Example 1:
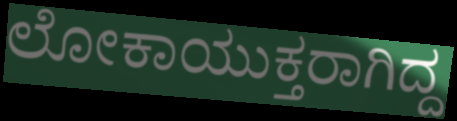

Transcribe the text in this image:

ಲೋಕಾಯುಕ್ತರಾಗಿದ್ದ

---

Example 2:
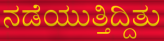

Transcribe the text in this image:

ನಡೆಯುತ್ತಿದ್ದಿತು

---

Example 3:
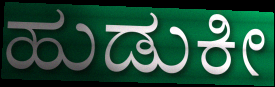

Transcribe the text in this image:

ಹುಡುಕೀ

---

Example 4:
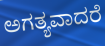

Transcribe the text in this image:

ಅಗತ್ಯವಾದರೆ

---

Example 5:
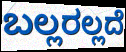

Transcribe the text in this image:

ಬಲ್ಲರಲ್ಲದೆ